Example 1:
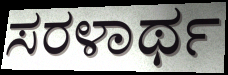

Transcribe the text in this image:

ಸರಳಾರ್ಥ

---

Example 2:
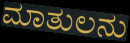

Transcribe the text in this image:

ಮಾತುಲನು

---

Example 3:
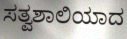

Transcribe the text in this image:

ಸತ್ವಶಾಲಿಯಾದ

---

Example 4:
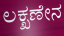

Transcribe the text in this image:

ಲಕ್ಖಣೇನ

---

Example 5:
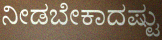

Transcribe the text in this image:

ನೀಡಬೇಕಾದಷ್ಟು